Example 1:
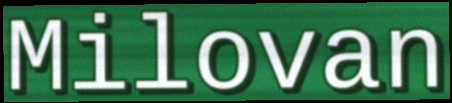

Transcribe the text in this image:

Milovan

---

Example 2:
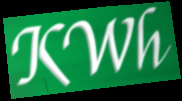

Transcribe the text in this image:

KWh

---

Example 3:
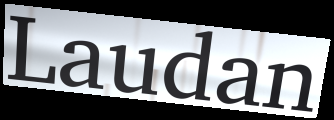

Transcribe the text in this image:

Laudan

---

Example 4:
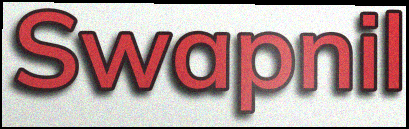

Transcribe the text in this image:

Swapnil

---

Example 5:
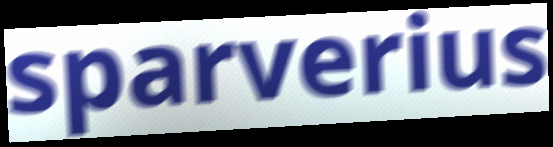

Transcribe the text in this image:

sparverius